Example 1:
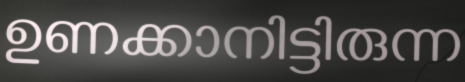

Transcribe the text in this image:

ഉണക്കാനിട്ടിരുന്ന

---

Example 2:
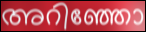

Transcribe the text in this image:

അറിഞ്ഞോ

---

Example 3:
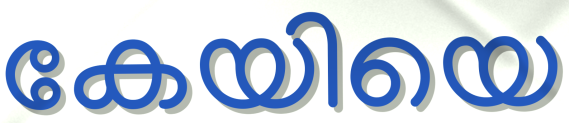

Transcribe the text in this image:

കേയിയെ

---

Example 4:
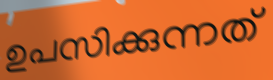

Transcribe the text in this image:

ഉപസിക്കുന്നത്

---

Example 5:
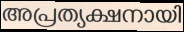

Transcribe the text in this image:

അപ്രത്യക്ഷനായി